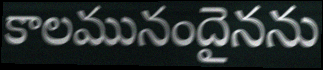
కాలమునందైనను